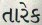
તારેક